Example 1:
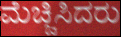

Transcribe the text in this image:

ಮೆಚ್ಚಿಸಿದರು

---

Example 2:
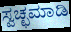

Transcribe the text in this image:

ಸ್ವಚ್ಛಮಾಡಿ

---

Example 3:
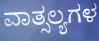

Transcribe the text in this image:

ವಾತ್ಸಲ್ಯಗಳ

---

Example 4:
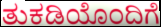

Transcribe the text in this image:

ತುಕಡಿಯೊಂದಿಗೆ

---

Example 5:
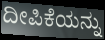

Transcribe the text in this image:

ದೀಪಿಕೆಯನ್ನು